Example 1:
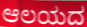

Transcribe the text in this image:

ಆಲಯದ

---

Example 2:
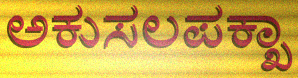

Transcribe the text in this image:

ಅಕುಸಲಪಕ್ಖಾ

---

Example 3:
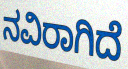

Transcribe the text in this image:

ನವಿರಾಗಿದೆ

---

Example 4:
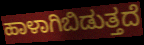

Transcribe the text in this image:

ಹಾಳಾಗಿಬಿಡುತ್ತದೆ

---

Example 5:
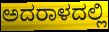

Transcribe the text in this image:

ಅದರಾಳದಲ್ಲಿ